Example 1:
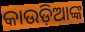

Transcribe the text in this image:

କାଉଡ଼ିଆଙ୍କ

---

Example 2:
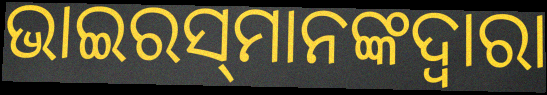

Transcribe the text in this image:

ଭାଇରସ୍‌ମାନଙ୍କଦ୍ୱାରା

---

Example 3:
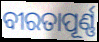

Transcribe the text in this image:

ବୀରତାପୂର୍ଣ୍ଣ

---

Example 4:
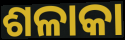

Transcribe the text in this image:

ଶଳାକା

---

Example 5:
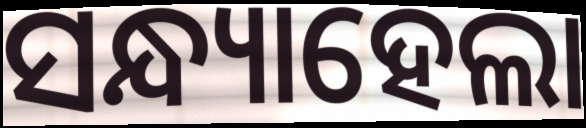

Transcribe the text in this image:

ସନ୍ଧ୍ୟାହେଲା